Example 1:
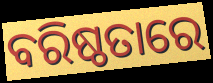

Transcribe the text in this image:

ବରିଷ୍ଠତାରେ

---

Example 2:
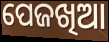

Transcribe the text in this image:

ପେଜଖିଆ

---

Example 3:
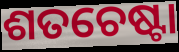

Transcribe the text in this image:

ଶତଚେଷ୍ଟା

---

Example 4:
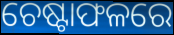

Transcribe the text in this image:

ଚେଷ୍ଟାଫଳରେ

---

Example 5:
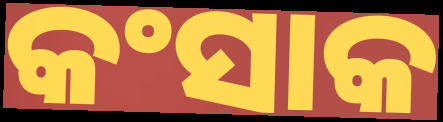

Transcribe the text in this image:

କଂସାକ